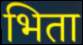
भिता